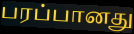
பரப்பானது